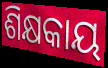
ଶିକ୍ଷକାୟ